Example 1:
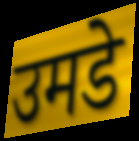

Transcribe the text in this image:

उमडे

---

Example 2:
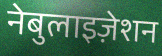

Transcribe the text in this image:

नेबुलाइज़ेशन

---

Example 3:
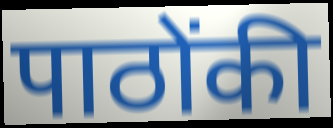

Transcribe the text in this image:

पाठोंकी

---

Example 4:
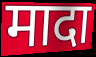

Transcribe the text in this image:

मादा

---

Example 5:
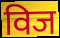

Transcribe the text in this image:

विज